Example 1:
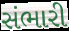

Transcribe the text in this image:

સંભારી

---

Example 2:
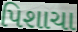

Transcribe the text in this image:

પિશાચા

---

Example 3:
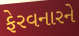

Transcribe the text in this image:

ફેરવનારને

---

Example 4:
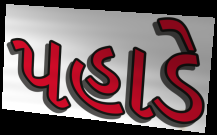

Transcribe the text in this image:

પહાડે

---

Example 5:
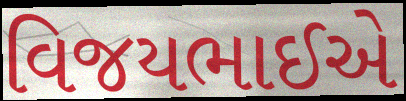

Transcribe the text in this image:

વિજયભાઈએ